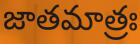
జాతమాత్రః